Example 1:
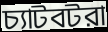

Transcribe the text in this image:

চ্যাটবটরা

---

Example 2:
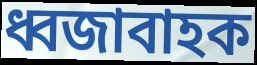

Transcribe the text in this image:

ধ্বজাবাহক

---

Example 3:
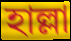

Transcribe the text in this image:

হাল্লা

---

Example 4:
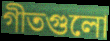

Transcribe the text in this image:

গীতগুলো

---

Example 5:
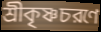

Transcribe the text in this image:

শ্রীকৃষ্ণচরণে